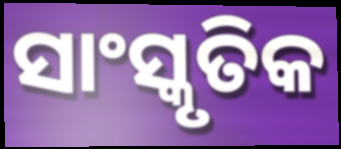
ସାଂସ୍କୃତିକ